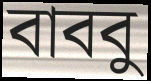
বাববু